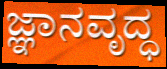
ಜ್ಞಾನವೃದ್ಧ